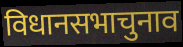
विधानसभाचुनाव